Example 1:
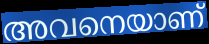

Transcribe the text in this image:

അവനെയാണ്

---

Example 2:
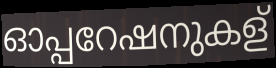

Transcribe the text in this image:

ഓപ്പറേഷനുകള്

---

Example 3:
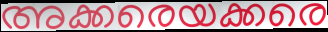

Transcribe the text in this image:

അക്കരെയക്കരെ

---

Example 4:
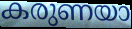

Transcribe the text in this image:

കരുണയാ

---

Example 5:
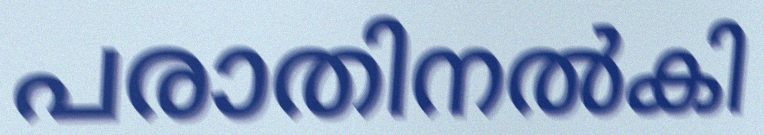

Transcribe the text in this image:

പരാതിനൽകി